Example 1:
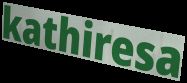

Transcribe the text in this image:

kathiresa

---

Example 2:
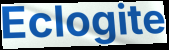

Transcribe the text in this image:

Eclogite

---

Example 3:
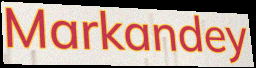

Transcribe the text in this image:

Markandey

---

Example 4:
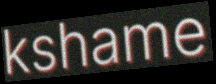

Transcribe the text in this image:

kshame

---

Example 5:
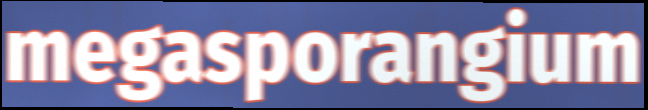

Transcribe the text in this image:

megasporangium